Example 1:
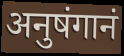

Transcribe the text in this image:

अनुषंगानं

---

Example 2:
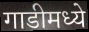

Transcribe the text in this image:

गाडीमध्ये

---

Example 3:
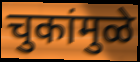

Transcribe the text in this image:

चुकांमुळे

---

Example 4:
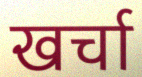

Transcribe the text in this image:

खर्चा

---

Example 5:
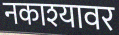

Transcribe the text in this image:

नकाश्यावर